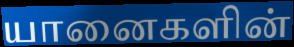
யானைகளின்